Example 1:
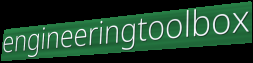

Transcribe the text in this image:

engineeringtoolbox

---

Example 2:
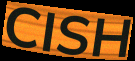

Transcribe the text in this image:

CISH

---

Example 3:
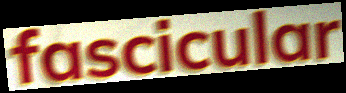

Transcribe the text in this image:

fascicular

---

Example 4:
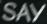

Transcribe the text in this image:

SAY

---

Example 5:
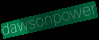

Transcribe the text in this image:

dawsonpower